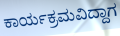
ಕಾರ್ಯಕ್ರಮವಿದ್ದಾಗ